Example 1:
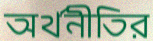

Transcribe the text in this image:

অর্থনীতির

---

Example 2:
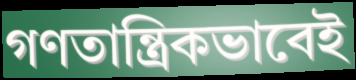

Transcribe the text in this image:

গণতান্ত্রিকভাবেই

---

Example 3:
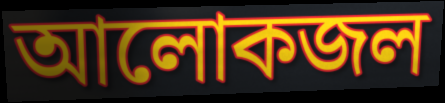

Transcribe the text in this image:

আলোকজল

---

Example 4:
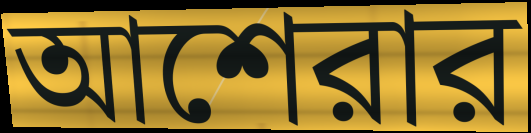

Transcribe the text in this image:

আশেরার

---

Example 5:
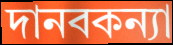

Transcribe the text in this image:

দানবকন্যা